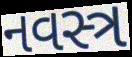
નવસ્ત્ર